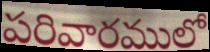
పరివారములో